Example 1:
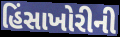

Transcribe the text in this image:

હિંસાખોરીની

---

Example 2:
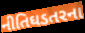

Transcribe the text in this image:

નીતિઘડતરના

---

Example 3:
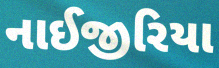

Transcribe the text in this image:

નાઈજીરિયા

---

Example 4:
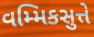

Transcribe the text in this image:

વમ્મિકસુત્તે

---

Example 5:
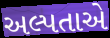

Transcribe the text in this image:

અલ્પતાએ